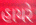
હાયરે